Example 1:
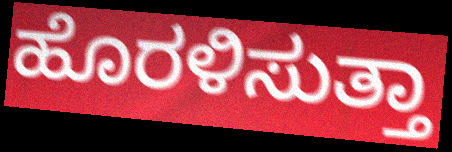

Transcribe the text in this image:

ಹೊರಳಿಸುತ್ತಾ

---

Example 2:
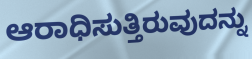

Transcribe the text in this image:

ಆರಾಧಿಸುತ್ತಿರುವುದನ್ನು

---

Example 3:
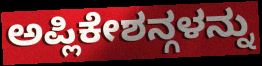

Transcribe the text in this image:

ಅಪ್ಲಿಕೇಶನ್ಗಳನ್ನು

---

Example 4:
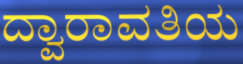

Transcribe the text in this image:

ದ್ವಾರಾವತಿಯ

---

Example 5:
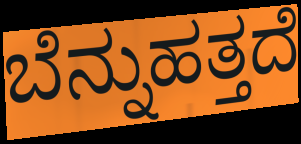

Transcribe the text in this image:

ಬೆನ್ನುಹತ್ತದೆ